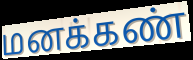
மனக்கண்